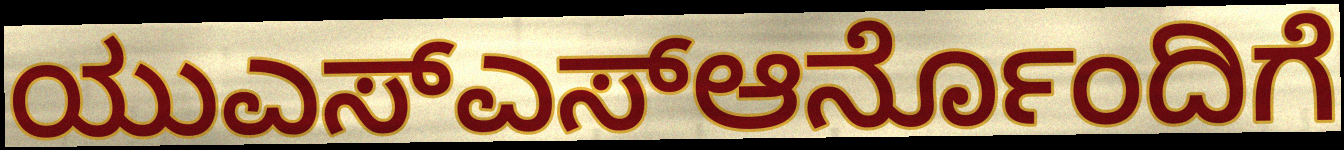
ಯುಎಸ್ಎಸ್ಆರ್ನೊಂದಿಗೆ